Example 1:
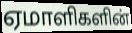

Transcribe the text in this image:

ஏமாளிகளின்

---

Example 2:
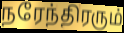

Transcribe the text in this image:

நரேந்திரரும்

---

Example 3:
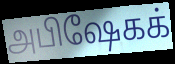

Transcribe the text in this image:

அபிஷேகக்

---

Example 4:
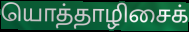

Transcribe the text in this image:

யொத்தாழிசைக்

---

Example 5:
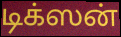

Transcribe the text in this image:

டிக்ஸன்